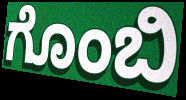
ಗೊಂಬಿ